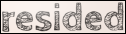
resided